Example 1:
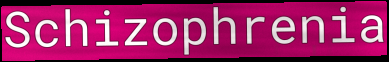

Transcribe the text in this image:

Schizophrenia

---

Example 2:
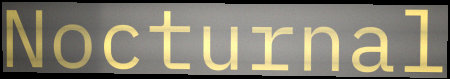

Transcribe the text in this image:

Nocturnal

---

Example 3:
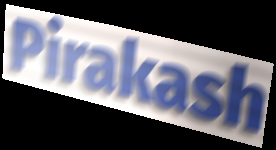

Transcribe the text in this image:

Pirakash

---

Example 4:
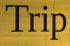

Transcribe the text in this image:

Trip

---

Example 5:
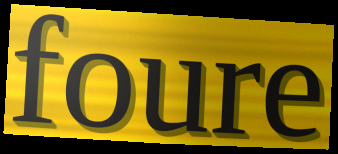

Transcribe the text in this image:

foure